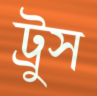
ট্রুস